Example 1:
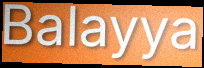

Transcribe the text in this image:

Balayya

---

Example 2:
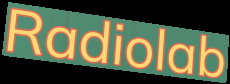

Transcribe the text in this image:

Radiolab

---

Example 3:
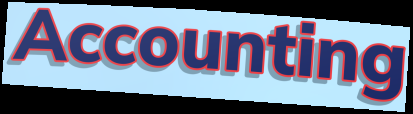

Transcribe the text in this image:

Accounting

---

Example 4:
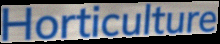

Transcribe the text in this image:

Horticulture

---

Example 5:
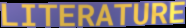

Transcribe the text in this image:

LITERATURE